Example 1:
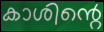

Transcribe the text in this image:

കാശിന്റെ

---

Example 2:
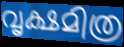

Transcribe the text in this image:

വൃക്ഷമിത്ര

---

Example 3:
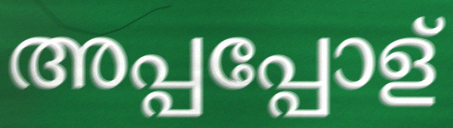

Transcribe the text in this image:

അപ്പപ്പോള്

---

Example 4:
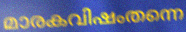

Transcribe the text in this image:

മാരകവിഷംതന്നെ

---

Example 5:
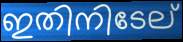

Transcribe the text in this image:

ഇതിനിടേല്